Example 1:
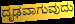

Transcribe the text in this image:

ದೃಢವಾಗುವುದು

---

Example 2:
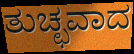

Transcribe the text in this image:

ತುಚ್ಛವಾದ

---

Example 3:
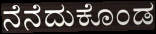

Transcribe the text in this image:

ನೆನೆದುಕೊಂಡ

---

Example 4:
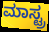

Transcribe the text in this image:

ಮಾಸ್ಟ್ರ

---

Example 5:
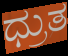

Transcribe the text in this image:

ಧ್ರುತ